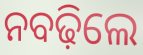
ନବଢ଼ିଲେ